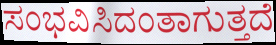
ಸಂಭವಿಸಿದಂತಾಗುತ್ತದೆ